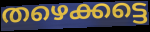
തഴെക്കട്ടെ